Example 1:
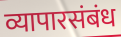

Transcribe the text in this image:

व्यापारसंबंध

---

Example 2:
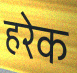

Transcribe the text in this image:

हरेक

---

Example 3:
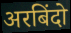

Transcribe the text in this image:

अरबिंदो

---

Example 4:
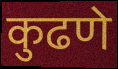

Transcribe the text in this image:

कुढणे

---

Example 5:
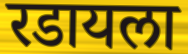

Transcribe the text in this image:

रडायला